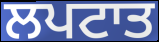
ਲਪਟਾਤ